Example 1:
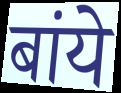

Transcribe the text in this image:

बांये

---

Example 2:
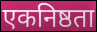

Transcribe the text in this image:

एकनिष्ठता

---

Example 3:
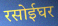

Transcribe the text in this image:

रसोईघर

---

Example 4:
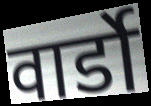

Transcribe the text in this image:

वार्डो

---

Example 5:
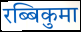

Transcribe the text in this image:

रब्बिकुमा